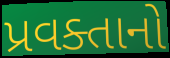
પ્રવક્તાનો